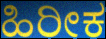
ಹಿರೀಕ